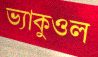
ভ্যাকুওল